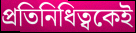
প্রতিনিধিত্বকেই